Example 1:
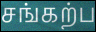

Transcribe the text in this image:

சங்கற்ப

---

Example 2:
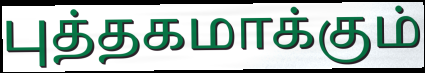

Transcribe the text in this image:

புத்தகமாக்கும்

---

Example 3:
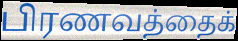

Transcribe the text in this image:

பிரணவத்தைக்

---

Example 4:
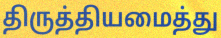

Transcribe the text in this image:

திருத்தியமைத்து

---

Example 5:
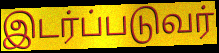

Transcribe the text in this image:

இடர்ப்படுவர்